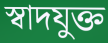
স্বাদযুক্ত